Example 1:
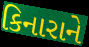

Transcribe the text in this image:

કિનારાને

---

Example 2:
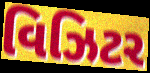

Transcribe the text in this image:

વિઝિટર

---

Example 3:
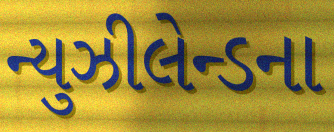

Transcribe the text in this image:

ન્યુઝીલેન્ડના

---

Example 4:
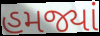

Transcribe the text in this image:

હમજ્યાં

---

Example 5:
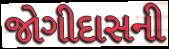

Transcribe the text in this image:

જોગીદાસની